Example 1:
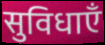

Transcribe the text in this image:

सुविधाएँ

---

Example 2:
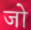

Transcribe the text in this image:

जो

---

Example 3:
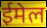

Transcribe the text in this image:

ईमेल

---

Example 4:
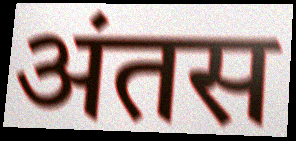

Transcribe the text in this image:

अंतस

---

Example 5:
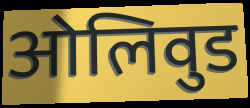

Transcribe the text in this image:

ओलिवुड